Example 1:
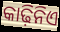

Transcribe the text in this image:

କାଢ଼ିନିଏ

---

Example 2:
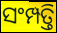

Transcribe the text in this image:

ସଂମ୍ପତ୍ତି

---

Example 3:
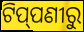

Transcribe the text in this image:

ଟିପ୍‌ପଣୀରୁ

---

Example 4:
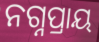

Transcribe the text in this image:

ନଗ୍ନପ୍ରାୟ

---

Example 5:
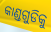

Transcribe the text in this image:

କାଣ୍ଡଗୁଡିକୁ